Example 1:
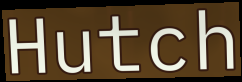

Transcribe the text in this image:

Hutch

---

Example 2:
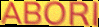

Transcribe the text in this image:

ABORI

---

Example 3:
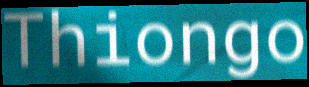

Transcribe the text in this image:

Thiongo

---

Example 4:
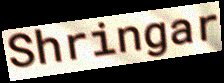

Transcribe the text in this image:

Shringar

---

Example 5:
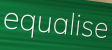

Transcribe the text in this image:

equalise